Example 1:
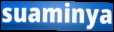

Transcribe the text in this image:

suaminya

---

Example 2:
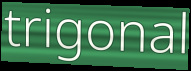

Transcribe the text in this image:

trigonal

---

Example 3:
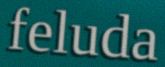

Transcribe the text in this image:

feluda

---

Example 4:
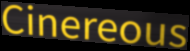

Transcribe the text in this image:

Cinereous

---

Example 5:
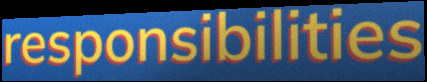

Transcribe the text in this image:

responsibilities